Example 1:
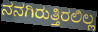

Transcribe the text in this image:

ನನಗಿರುತ್ತಿರಲಿಲ್ಲ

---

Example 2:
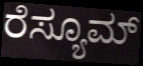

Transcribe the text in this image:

ರೆಸ್ಯೂಮ್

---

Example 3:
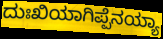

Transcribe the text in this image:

ದುಃಖಿಯಾಗಿಪ್ಪೆನಯ್ಯಾ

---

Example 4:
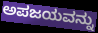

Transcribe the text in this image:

ಅಪಜಯವನ್ನು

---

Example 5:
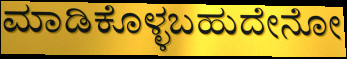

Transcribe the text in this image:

ಮಾಡಿಕೊಳ್ಳಬಹುದೇನೋ